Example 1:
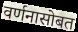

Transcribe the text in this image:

वर्णनासोबत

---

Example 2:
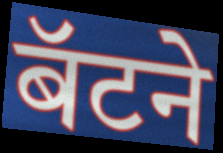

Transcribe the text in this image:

बॅटने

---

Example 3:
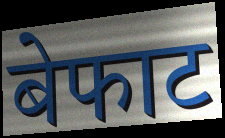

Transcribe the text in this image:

बेफाट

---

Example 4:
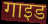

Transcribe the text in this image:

गाइड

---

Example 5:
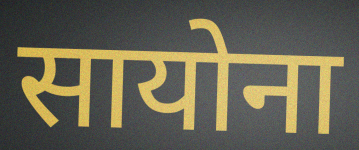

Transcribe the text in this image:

सायोना